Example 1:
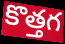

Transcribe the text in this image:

కొత్తగ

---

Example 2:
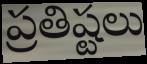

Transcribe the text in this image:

ప్రతిష్టలు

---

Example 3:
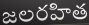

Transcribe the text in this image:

జలరహిత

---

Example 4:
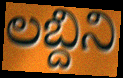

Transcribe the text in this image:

లబ్దిని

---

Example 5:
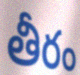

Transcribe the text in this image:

తీరం